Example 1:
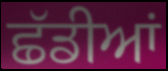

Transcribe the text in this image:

ਛੱਡੀਆਂ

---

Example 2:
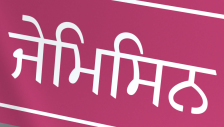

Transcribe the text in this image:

ਜੇਮਿਸਿਨ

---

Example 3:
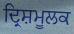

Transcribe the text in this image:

ਦ੍ਰਿਸ਼ਮੂਲਕ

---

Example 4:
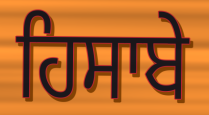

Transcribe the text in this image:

ਹਿਸਾਬੇ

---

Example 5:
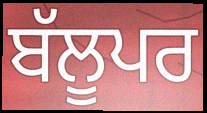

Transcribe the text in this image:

ਬੱਲੂਪਰ